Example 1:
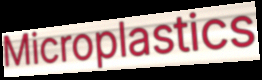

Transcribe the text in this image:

Microplastics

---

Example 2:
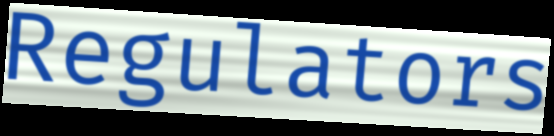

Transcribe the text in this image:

Regulators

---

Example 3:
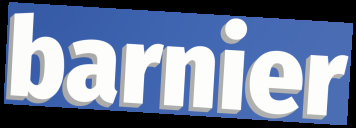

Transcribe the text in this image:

barnier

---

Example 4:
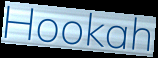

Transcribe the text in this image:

Hookah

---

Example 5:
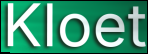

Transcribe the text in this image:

Kloet